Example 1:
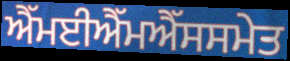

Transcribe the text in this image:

ਐੱਮਈਐੱਮਐੱਸਸਮੇਤ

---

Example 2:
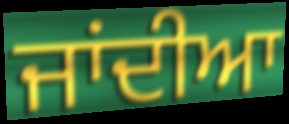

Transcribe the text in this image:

ਜਾਂਦੀਆ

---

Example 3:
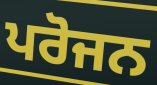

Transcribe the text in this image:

ਪਰੋਜਨ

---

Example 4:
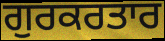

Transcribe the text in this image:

ਗੁਰਕਰਤਾਰ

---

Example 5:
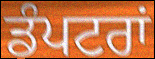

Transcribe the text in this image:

ਡੰਪਟਰਾਂ